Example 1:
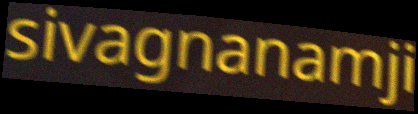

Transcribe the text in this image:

sivagnanamji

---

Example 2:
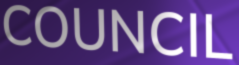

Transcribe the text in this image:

COUNCIL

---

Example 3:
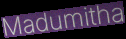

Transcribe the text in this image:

Madumitha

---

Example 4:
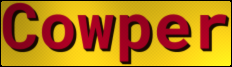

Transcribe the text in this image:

Cowper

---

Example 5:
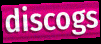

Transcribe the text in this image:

discogs